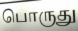
பொருது